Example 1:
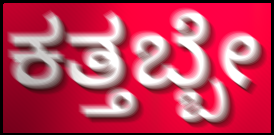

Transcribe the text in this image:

ಕತ್ತಬ್ಬೇ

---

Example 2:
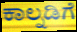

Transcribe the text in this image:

ಕಾಲ್ನಡಿಗೆ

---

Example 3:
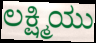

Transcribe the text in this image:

ಲಕ್ಷ್ಮಿಯು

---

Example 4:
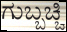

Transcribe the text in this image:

ಗುಬ್ಬಚ್ಚಿ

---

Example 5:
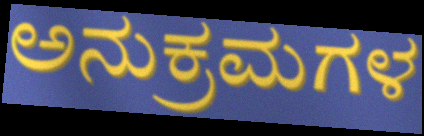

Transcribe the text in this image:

ಅನುಕ್ರಮಗಳ